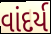
વાંદર્ય